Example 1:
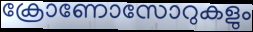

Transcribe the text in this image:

ക്രോണോസോറുകളും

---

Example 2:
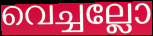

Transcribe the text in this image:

വെച്ചല്ലോ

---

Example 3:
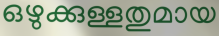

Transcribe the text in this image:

ഒഴുക്കുള്ളതുമായ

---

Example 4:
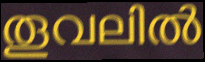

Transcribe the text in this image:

തൂവലിൽ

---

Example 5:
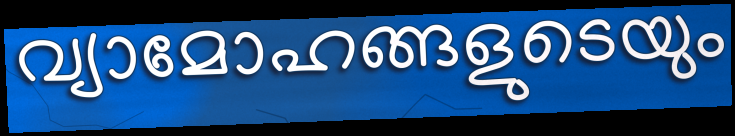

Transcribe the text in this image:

വ്യാമോഹങ്ങളുടെയും